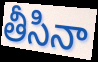
తీసినా